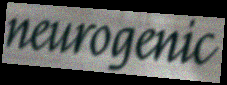
neurogenic